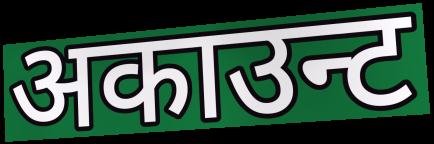
अकाउन्ट